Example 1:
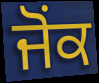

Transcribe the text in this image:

ਜੋਂਕ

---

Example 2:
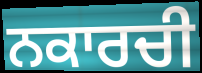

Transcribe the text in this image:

ਨਕਾਰਚੀ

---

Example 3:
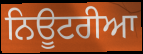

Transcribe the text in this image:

ਨਿਊਟਰੀਆ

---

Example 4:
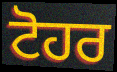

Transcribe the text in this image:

ਟੋਹਰ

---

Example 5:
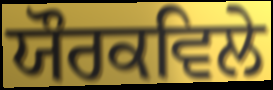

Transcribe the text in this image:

ਯੌਰਕਵਿਲੇ